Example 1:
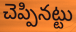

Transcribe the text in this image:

చెప్పినట్టు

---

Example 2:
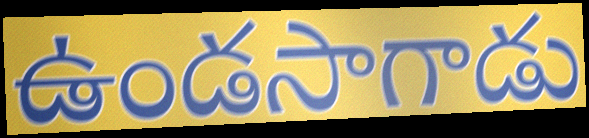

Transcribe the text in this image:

ఉండసాగాడు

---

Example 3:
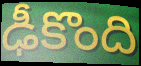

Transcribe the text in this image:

ఢీకొంది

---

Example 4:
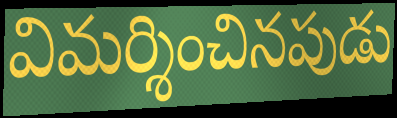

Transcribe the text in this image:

విమర్శించినపుడు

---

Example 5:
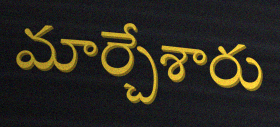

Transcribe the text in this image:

మార్చేశారు